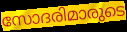
സോദരിമാരുടെ